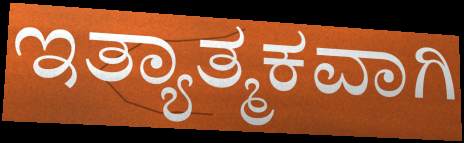
ಇತ್ಯಾತ್ಮಕವಾಗಿ